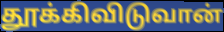
தூக்கிவிடுவான்